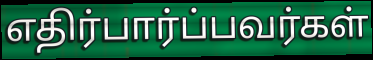
எதிர்பார்ப்பவர்கள்